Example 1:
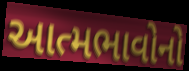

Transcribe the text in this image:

આત્મભાવોનો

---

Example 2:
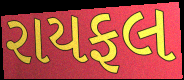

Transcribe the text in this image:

રાયફલ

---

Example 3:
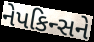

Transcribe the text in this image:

નેપકિન્સને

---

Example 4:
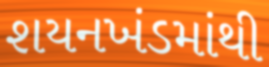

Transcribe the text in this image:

શયનખંડમાંથી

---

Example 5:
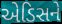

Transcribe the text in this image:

એડિસને